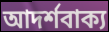
আদর্শবাক্য